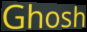
Ghosh